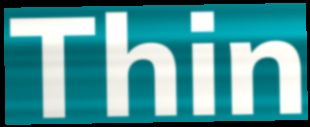
Thin